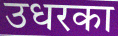
उधरका